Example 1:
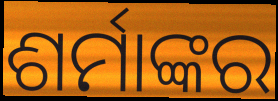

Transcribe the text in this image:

ଶର୍ମାଙ୍କର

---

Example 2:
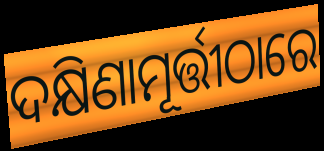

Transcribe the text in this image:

ଦକ୍ଷିଣାମୂର୍ତ୍ତୀଠାରେ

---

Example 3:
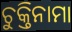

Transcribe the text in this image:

ଚୁକ୍ତିନାମା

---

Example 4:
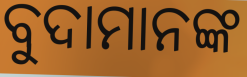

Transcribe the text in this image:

ବୁଦାମାନଙ୍କ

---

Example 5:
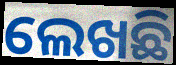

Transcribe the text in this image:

ଲେଖଛି